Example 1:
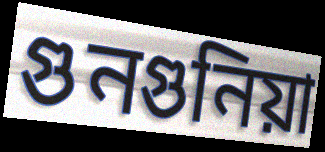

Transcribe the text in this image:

গুনগুনিয়া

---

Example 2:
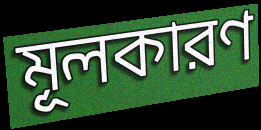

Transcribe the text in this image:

মূলকারণ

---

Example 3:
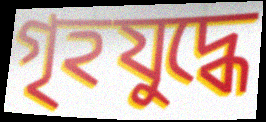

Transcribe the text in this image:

গৃহযুদ্ধে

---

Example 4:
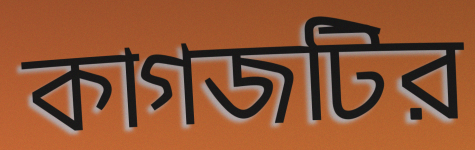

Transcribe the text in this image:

কাগজটির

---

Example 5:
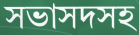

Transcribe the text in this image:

সভাসদসহ